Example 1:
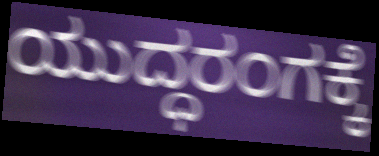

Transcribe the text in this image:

ಯುದ್ಧರಂಗಕ್ಕೆ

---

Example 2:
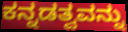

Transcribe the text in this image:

ಕನ್ನಡತ್ವವನ್ನು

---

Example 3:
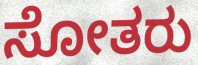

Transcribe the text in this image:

ಸೋತರು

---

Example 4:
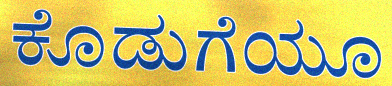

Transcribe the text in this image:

ಕೊಡುಗೆಯೂ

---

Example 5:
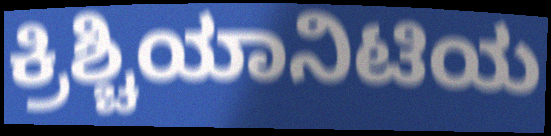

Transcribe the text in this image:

ಕ್ರಿಶ್ಚಿಯಾನಿಟಿಯ